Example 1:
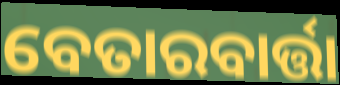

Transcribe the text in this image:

ବେତାରବାର୍ତ୍ତା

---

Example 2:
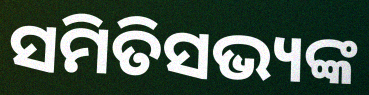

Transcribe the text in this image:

ସମିତିସଭ୍ୟଙ୍କ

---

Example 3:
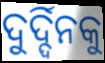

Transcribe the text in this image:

ଦୁର୍ଦ୍ଦିନକୁ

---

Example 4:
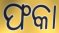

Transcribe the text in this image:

ଫକା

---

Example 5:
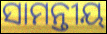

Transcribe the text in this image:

ସାମନ୍ତୀୟ